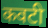
कवटी